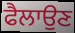
ਫੈਲਾਉਣ